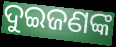
ଦୁଇଜଣଙ୍କ